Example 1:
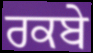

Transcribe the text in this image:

ਰਕਬੇ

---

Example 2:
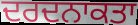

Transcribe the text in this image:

ਦਰਦਨਾਕਤਾ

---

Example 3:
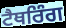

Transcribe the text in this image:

ਟੈਥਰਿੰਗ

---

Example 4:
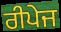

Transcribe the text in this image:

ਰੀਪੇਜ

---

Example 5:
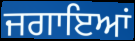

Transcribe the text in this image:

ਜਗਾਇਆਂ